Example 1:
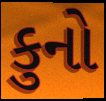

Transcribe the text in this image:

કુનો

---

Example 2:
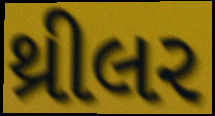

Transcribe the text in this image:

થ્રીલર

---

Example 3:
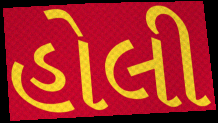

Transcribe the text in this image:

હોલી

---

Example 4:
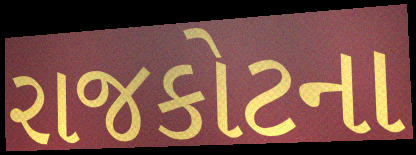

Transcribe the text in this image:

રાજકોટના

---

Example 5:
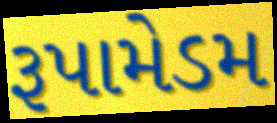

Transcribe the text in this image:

રૂપામેડમ